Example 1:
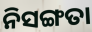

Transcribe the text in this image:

ନିସଙ୍ଗତା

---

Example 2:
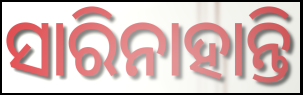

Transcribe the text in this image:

ସାରିନାହାନ୍ତି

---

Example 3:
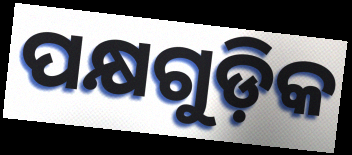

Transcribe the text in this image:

ପକ୍ଷଗୁଡ଼ିକ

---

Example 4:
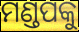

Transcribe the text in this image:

ମଣ୍ଡପକୁ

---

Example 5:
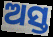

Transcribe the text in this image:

ଅସ୍ତ